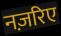
नज़रिए